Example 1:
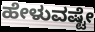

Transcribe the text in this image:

ಹೇಳುವಷ್ಟೇ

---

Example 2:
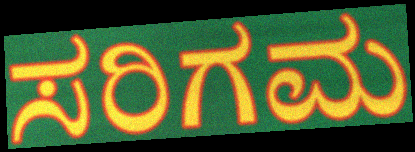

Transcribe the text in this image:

ಸರಿಗಮ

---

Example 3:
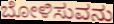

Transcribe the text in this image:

ಬೋಳಿಸುವನು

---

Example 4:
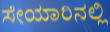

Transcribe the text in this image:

ಸೇಯಾರಿನಲ್ಲಿ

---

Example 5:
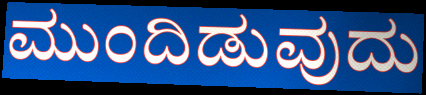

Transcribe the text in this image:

ಮುಂದಿಡುವುದು